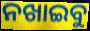
ନଖାଇବୁ